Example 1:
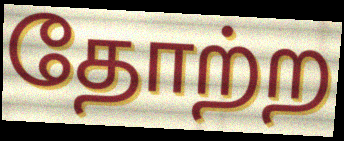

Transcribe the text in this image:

தோற்ற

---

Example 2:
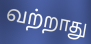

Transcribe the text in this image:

வற்றாது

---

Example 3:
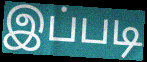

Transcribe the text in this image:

இப்படி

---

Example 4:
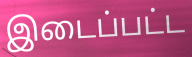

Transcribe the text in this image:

இடைப்பட்ட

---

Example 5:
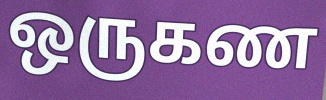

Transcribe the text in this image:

ஒருகண